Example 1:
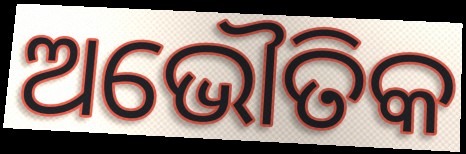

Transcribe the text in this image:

ଅଭୌତିକ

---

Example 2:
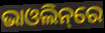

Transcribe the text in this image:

ଭାଓଲିନ୍‌ରେ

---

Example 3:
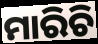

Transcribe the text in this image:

ମାରିଚି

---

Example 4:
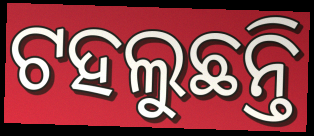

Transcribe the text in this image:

ଟହଲୁଛନ୍ତି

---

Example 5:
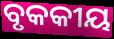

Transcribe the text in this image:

ବୃକକୀୟ